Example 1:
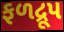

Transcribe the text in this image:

ફળદ્રૂપ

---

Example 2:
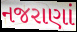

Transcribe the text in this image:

નજરાણાં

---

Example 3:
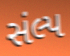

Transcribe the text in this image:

સંલ્પ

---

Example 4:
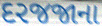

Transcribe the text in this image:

દરજજાના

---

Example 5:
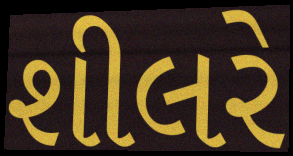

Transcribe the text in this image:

શીલરે